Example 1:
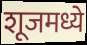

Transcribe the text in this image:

शूजमध्ये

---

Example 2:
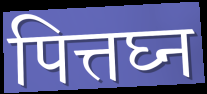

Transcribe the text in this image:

पित्तघ्न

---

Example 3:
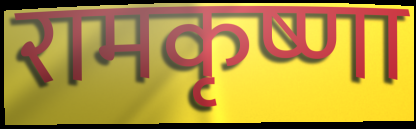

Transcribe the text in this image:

रामकृष्णा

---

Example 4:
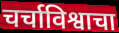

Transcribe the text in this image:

चर्चाविश्वाचा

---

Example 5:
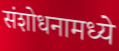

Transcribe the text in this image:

संशोधनामध्ये